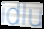
idlu